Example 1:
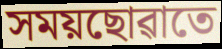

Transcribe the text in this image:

সময়ছোৱাতে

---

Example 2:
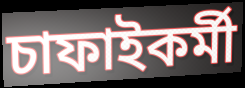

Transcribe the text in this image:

চাফাইকৰ্মী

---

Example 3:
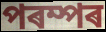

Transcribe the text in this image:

পৰম্পৰ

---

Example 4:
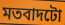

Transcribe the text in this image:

মতবাদটো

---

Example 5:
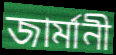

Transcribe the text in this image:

জাৰ্মানী